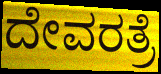
ದೇವರತ್ರೆ